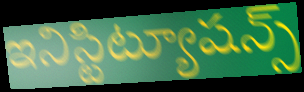
ఇనిస్టిట్యూషన్స్